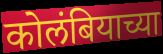
कोलंबियाच्या